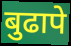
बुढापे